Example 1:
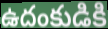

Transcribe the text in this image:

ఉదంకుడికి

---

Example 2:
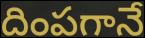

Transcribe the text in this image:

దింపగానే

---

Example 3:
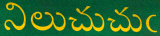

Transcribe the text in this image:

నిలుచుచుఁ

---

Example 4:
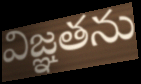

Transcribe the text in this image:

విజ్ఞతను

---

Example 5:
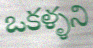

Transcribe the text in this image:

ఒకళ్ళని